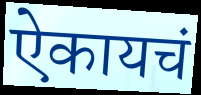
ऐकायचं